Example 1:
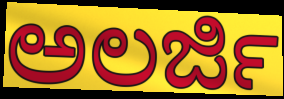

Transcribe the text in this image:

ಅಲರ್ಜಿ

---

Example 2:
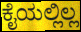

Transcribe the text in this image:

ಕೈಯಲ್ಲಿಲ್ಲ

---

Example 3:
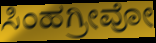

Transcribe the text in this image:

ಸಿಂಹಗ್ರೀವೋ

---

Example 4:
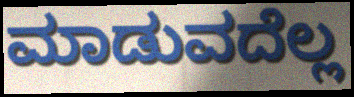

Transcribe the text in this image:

ಮಾಡುವದೆಲ್ಲ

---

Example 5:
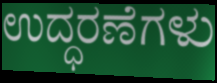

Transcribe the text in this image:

ಉದ್ಧರಣೆಗಳು